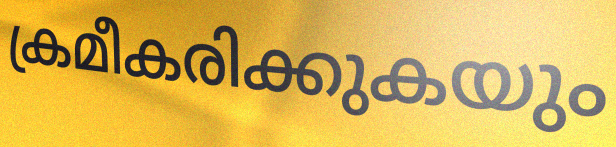
ക്രമീകരിക്കുകയും